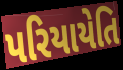
પરિયાયેતિ